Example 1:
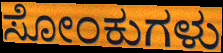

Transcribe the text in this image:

ಸೋಂಕುಗಳು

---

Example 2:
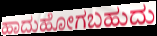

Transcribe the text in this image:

ಹಾದುಹೋಗಬಹುದು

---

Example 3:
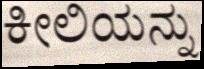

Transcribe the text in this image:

ಕೀಲಿಯನ್ನು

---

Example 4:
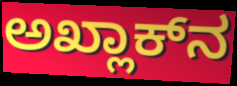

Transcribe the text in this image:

ಅಖ್ಲಾಕ್‍ನ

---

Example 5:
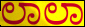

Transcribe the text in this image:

ಲಾಲಾ